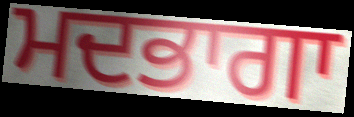
ਮਦਭਾਗਾ